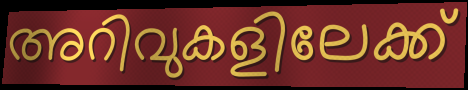
അറിവുകളിലേക്ക്